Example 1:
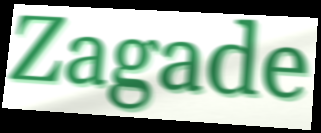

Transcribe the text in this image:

Zagade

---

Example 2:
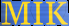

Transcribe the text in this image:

MIK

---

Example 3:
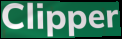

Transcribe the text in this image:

Clipper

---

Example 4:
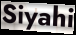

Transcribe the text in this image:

Siyahi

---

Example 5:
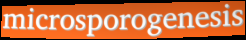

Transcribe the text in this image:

microsporogenesis